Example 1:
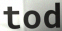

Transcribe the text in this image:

tod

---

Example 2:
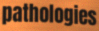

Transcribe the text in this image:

pathologies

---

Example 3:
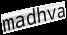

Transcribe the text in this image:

madhva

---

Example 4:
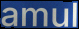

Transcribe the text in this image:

amul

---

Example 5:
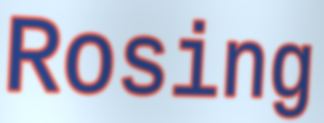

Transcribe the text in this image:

Rosing